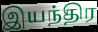
இயந்திர